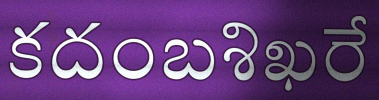
కదంబశిఖరే